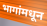
भागांमधून